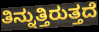
ತಿನ್ನುತ್ತಿರುತ್ತದೆ